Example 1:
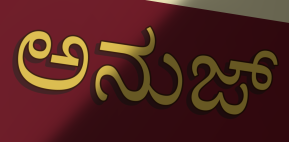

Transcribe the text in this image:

ಅನುಜ್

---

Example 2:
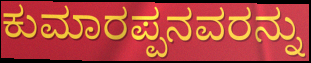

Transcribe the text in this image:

ಕುಮಾರಪ್ಪನವರನ್ನು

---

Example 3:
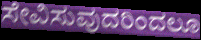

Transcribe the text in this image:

ಸೇವಿಸುವುದರಿಂದಲೂ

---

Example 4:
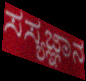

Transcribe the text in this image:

ಸಸ್ಯಜ್ಞಾನ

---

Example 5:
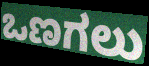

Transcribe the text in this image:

ಒಣಗಲು